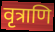
वृत्राणि